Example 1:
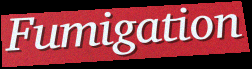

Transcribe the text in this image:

Fumigation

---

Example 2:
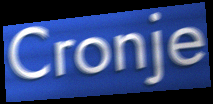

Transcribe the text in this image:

Cronje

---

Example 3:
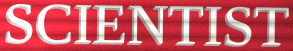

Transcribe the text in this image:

SCIENTIST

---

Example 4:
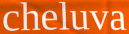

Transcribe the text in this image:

cheluva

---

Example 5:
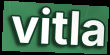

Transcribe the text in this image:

vitla